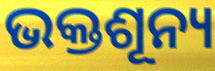
ଭକ୍ତଶୂନ୍ୟ